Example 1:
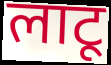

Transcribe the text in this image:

लाटू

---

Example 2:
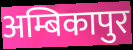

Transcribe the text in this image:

अम्बिकापुर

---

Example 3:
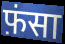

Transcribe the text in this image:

फ़ंसा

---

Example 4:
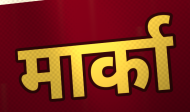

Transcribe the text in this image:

मार्का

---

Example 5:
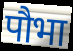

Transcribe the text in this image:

पौभा